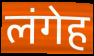
लंगेह